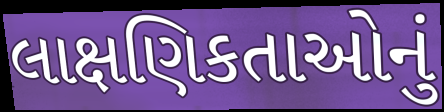
લાક્ષણિકતાઓનું